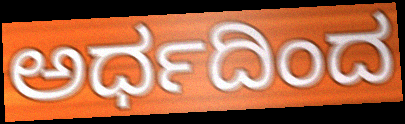
ಅರ್ಧದಿಂದ